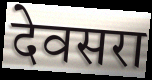
देवसरा